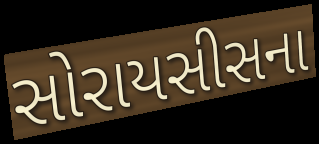
સોરાયસીસના